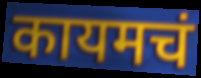
कायमचं